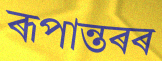
ৰূপান্তৰৰ